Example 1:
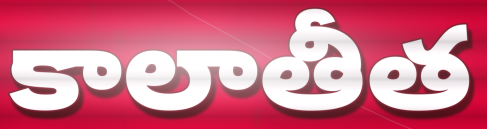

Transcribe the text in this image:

కాలాతీత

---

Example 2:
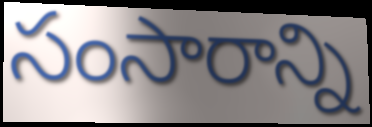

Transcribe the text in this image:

సంసారాన్ని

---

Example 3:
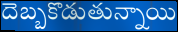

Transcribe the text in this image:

దెబ్బకొడుతున్నాయి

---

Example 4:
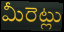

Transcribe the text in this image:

మీరెట్లు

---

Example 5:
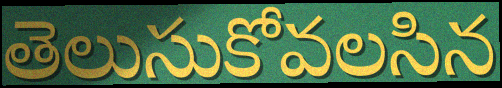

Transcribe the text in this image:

తెలుసుకోవలసిన